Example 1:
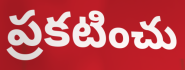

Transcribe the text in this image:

ప్రకటించు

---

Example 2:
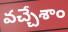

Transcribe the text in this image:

వచ్చేశాం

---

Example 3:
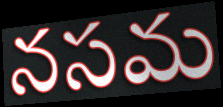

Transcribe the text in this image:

నసమ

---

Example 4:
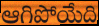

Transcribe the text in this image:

ఆగిపోయేది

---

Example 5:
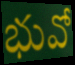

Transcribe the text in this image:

భువో